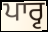
ਪਾਰ੍ਟ